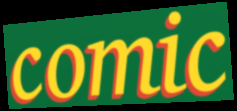
comic